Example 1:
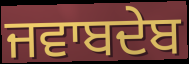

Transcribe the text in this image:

ਜਵਾਬਦੇਬ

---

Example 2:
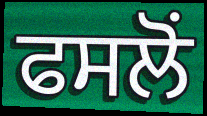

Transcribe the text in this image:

ਫਸਲੋਂ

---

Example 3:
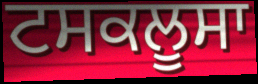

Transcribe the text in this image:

ਟਸਕਲੂਸਾ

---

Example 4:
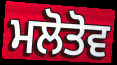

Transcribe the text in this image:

ਮਲੋਤੋਵ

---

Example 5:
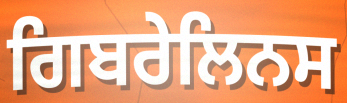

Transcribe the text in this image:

ਗਿਬਰੇਲਿਨਸ